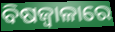
ବିଷଜ୍ୱାଳାରେ